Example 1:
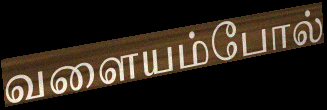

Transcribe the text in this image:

வளையம்போல்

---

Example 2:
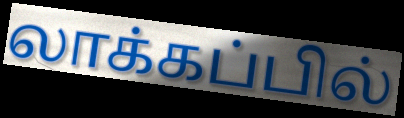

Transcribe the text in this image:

லாக்கப்பில்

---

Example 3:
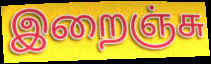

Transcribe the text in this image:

இறைஞ்சு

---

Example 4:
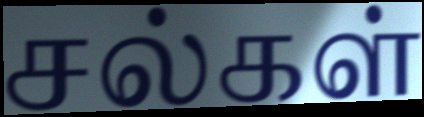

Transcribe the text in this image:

சல்கள்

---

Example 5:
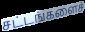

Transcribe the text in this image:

சட்டங்களைச்